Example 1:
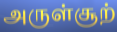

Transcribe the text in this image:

அருள்சூற்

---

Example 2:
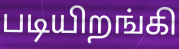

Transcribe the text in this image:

படியிறங்கி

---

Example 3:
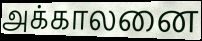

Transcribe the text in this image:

அக்காலனை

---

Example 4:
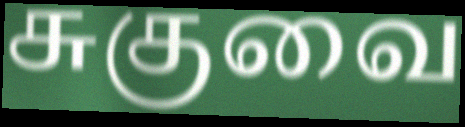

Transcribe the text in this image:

சுகுவை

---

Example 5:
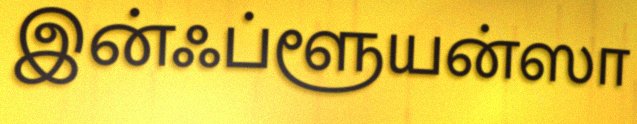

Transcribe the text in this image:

இன்ஃப்ளூயன்ஸா